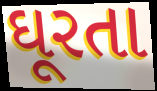
ઘૂરતા